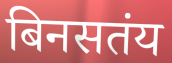
बिनसतंय